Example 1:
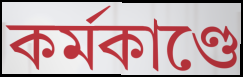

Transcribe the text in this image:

কর্মকাণ্ডে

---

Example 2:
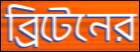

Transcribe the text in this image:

ব্রিটেনের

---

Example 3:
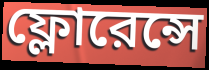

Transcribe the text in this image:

ফ্লোরেন্সে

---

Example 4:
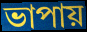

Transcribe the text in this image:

ভাপায়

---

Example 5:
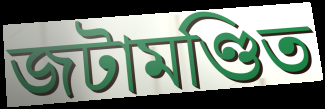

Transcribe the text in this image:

জটামণ্ডিত